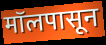
मॉलपासून